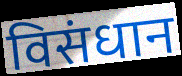
विसंधान